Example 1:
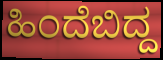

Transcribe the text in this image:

ಹಿಂದೆಬಿದ್ದ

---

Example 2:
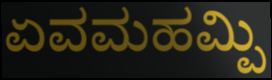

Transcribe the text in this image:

ಏವಮಹಮ್ಪಿ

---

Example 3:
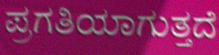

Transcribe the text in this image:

ಪ್ರಗತಿಯಾಗುತ್ತದೆ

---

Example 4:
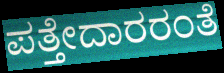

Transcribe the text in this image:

ಪತ್ತೇದಾರರಂತೆ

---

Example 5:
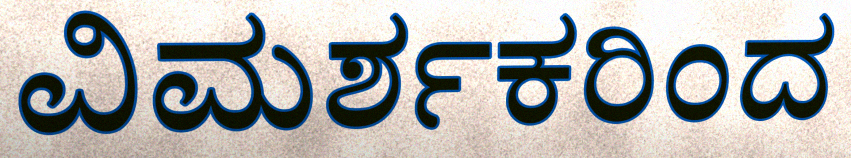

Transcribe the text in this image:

ವಿಮರ್ಶಕರಿಂದ